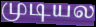
முடியல